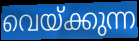
വെയ്ക്കുന്ന